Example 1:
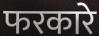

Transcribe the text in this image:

फरकारे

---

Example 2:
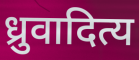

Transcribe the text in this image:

ध्रुवादित्य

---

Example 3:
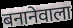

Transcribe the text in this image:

बनानेवाला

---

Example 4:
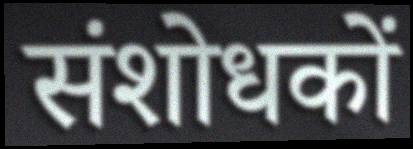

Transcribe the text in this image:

संशोधकों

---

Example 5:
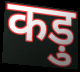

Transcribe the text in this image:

कड़ु